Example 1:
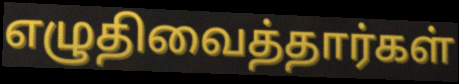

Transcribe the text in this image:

எழுதிவைத்தார்கள்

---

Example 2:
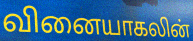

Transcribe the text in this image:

வினையாகலின்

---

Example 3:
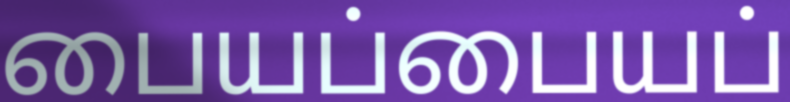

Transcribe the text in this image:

பையப்பையப்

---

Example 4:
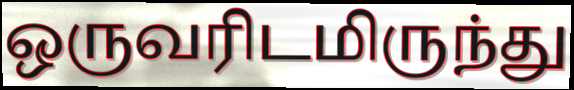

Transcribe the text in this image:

ஒருவரிடமிருந்து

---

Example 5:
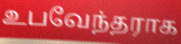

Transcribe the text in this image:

உபவேந்தராக